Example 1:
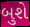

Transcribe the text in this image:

બુશે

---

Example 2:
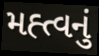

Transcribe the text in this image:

મહ્ત્વનું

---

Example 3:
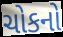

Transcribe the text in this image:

ચોકનો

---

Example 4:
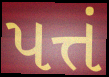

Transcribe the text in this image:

પત્તં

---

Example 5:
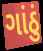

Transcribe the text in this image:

ગાંઠું